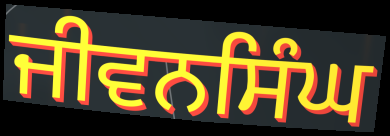
ਜੀਵਨਸਿੰਘ